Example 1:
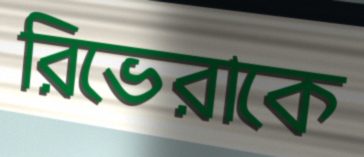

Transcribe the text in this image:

রিভেরাকে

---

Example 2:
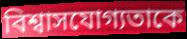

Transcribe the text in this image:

বিশ্বাসযোগ্যতাকে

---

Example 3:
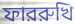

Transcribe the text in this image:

ফাররুখি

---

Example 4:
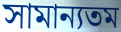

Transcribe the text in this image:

সামান্যতম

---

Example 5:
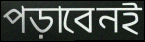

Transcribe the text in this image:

পড়াবেনই